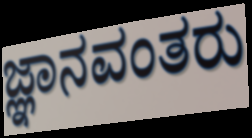
ಜ್ಞಾನವಂತರು